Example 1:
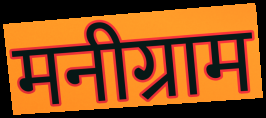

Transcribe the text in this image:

मनीग्राम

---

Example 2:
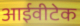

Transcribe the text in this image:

आईवीटेक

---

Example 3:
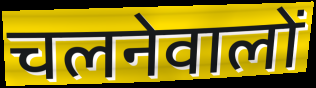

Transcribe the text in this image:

चलनेवालों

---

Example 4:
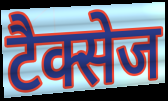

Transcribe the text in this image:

टैक्सेज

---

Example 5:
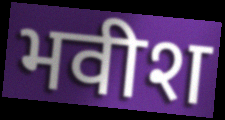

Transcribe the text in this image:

भवीश